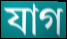
যাগ